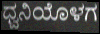
ಧ್ವನಿಯೊಳಗ